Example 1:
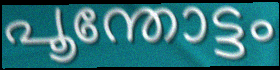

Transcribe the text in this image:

പൂന്തോട്ടം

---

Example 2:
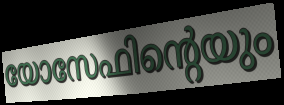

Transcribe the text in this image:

യോസേഫിന്റെയും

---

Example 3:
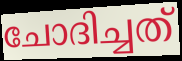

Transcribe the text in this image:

ചോദിച്ചത്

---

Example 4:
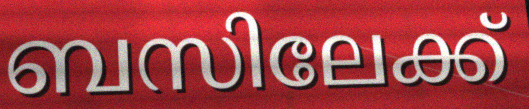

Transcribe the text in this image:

ബസിലേക്ക്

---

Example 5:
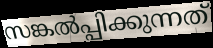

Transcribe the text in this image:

സങ്കൽപ്പിക്കുന്നത്